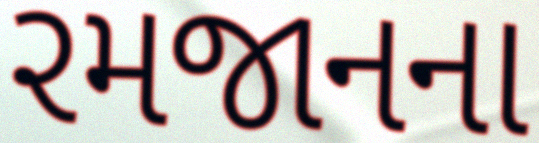
રમજાનના